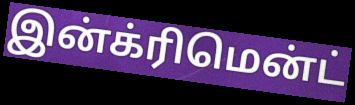
இன்க்ரிமென்ட்